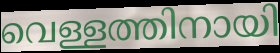
വെള്ളത്തിനായി